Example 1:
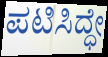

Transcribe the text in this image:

ಪಟಿಸಿದ್ಧೇ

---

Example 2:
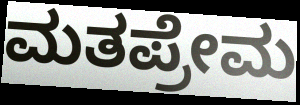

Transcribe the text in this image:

ಮತಪ್ರೇಮ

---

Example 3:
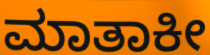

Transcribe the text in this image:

ಮಾತಾಕೀ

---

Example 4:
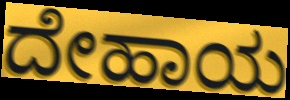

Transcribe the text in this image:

ದೇಹಾಯ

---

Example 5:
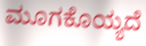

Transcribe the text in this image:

ಮೂಗಕೊಯ್ಯದೆ